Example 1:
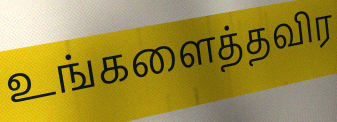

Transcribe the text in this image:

உங்களைத்தவிர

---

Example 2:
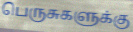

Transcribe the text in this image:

பெருசுகளுக்கு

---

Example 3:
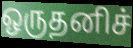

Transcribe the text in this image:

ஒருதனிச்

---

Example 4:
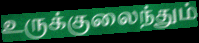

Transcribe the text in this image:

உருக்குலைந்தும்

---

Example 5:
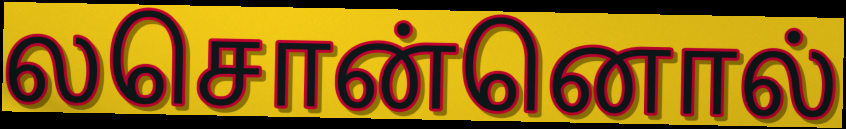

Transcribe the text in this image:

லசொன்னொல்